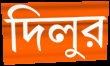
দিলুর